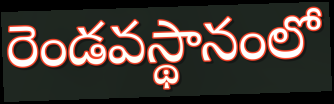
రెండవస్థానంలో